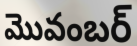
మొవంబర్